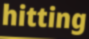
hitting